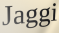
Jaggi